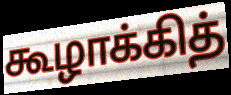
கூழாக்கித்